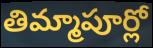
తిమ్మాపూర్లో